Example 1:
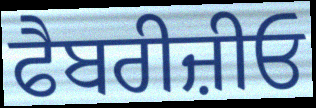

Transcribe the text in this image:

ਫੈਬਰੀਜ਼ੀਓ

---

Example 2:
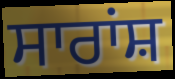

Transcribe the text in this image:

ਸਾਰਾਂਸ਼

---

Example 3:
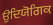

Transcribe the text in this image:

ਉਦਿਯੋਗਿਕ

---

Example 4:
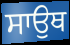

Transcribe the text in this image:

ਸਾਉਥ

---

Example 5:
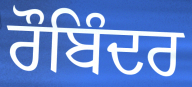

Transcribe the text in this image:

ਰੌਬਿੰਦਰ